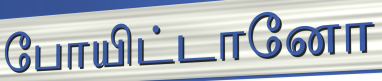
போயிட்டானோ